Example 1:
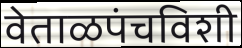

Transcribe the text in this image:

वेताळपंचविशी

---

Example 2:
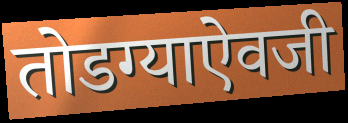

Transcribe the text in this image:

तोडग्याऐवजी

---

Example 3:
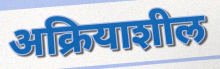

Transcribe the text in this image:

अक्रियाशील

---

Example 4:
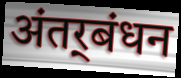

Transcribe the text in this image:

अंतर्बंधन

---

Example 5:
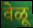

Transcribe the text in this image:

वेळू